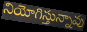
నియోగిస్తున్నావు